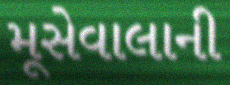
મૂસેવાલાની